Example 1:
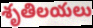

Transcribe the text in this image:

శృతిలయలు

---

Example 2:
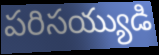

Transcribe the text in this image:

పరిసయ్యుడి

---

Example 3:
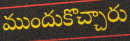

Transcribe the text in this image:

ముందుకొచ్చారు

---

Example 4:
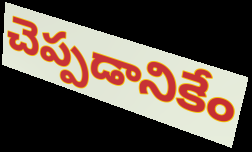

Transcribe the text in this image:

చెప్పడానికేం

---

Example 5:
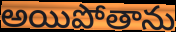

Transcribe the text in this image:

అయిపోతాను